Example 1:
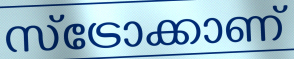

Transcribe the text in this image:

സ്ട്രോക്കാണ്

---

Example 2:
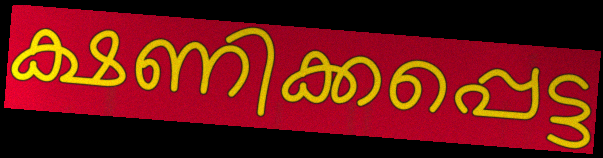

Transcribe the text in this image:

ക്ഷണിക്കപ്പെട്ട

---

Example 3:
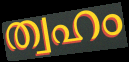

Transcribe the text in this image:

ത്വഹം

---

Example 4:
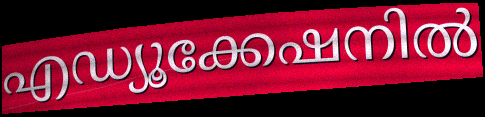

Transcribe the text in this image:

എഡ്യൂക്കേഷനിൽ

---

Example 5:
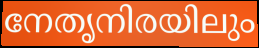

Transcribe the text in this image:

നേതൃനിരയിലും